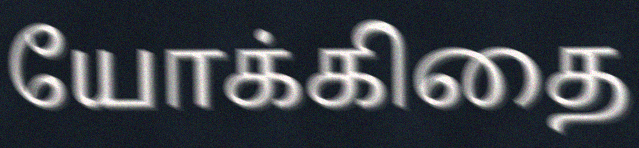
யோக்கிதை